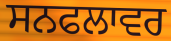
ਸਨਫਲਾਵਰ